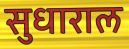
सुधाराल